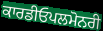
ਕਾਰਡੀਓਪਲਮੋਨਰੀ